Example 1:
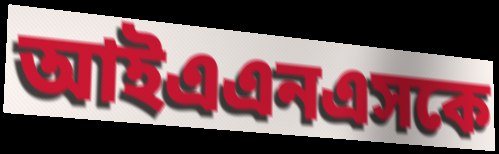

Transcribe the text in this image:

আইএএনএসকে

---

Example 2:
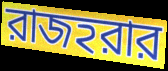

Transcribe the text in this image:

রাজহরার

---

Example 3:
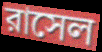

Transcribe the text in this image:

রাসেল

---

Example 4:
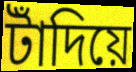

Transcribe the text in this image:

টাঁদিয়ে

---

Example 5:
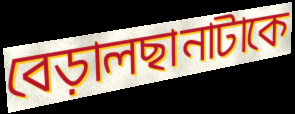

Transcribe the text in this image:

বেড়ালছানাটাকে